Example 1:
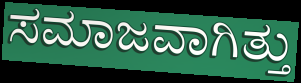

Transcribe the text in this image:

ಸಮಾಜವಾಗಿತ್ತು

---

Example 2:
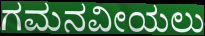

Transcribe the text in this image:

ಗಮನವೀಯಲು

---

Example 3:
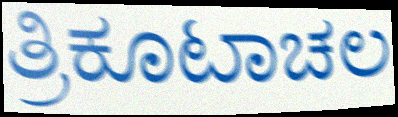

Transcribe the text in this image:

ತ್ರಿಕೂಟಾಚಲ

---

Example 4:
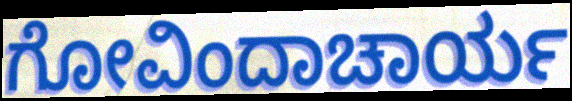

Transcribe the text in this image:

ಗೋವಿಂದಾಚಾರ್ಯ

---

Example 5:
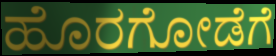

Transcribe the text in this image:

ಹೊರಗೋಡೆಗೆ